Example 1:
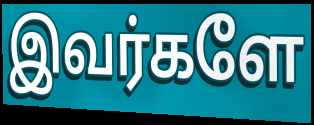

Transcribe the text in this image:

இவர்களே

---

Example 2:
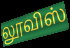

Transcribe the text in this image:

லூவிஸ்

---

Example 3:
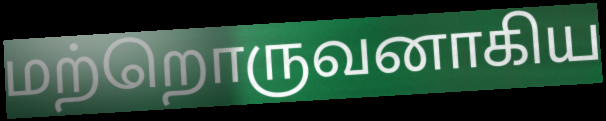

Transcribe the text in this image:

மற்றொருவனாகிய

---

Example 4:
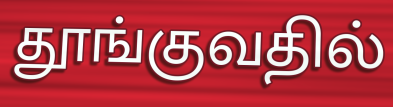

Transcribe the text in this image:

தூங்குவதில்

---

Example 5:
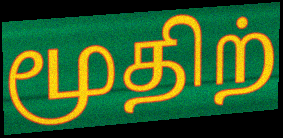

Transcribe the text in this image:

மூதிற்